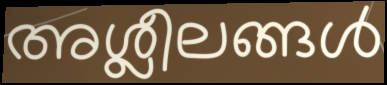
അശ്ലീലങ്ങൾ